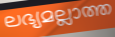
ലഭ്യമല്ലാത്ത